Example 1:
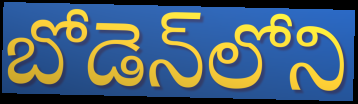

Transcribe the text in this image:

బోడెన్‌లోని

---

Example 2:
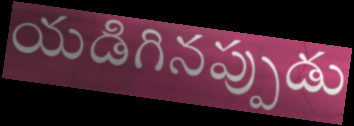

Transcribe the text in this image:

యడిగినప్పుడు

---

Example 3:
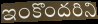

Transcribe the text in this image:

ఇంకొందరిని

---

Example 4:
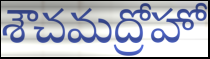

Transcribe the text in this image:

శౌచమద్రోహో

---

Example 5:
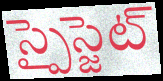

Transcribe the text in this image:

స్పైస్జెట్